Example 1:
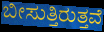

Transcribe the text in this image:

ಬೀಸುತ್ತಿರುತ್ತವೆ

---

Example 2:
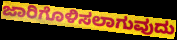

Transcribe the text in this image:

ಜಾರಿಗೊಳಿಸಲಾಗುವುದು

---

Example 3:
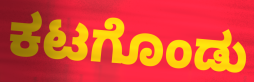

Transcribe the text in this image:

ಕಟಗೊಂಡು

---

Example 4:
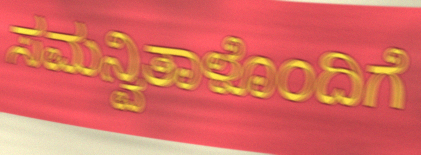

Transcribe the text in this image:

ಸಮನ್ವಿತಾಳೊಂದಿಗೆ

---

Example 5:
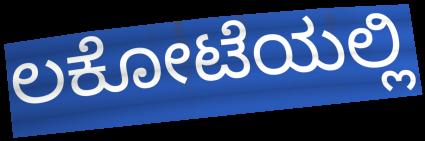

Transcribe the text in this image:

ಲಕೋಟೆಯಲ್ಲಿ